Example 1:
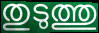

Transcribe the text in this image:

തുടുത്തു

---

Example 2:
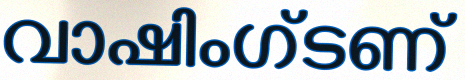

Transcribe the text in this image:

വാഷിംഗ്ടണ്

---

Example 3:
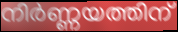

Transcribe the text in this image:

നിർണ്ണയത്തിന്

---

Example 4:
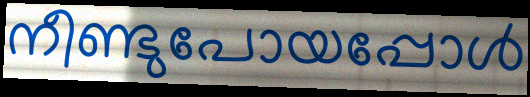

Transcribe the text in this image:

നീണ്ടുപോയപ്പോൾ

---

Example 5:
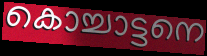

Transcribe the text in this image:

കൊച്ചാട്ടനെ